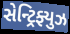
સેન્ટ્રિફ્યુઝ